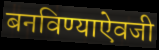
बनविण्याऐवजी